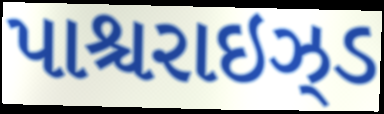
પાશ્ચરાઇઝ્ડ